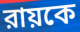
রায়কে